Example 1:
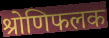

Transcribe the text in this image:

श्रोणिफलक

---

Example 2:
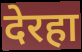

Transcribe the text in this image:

देरहा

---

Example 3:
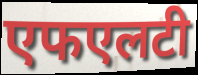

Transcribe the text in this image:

एफएलटी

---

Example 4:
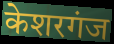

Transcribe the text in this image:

केशरगंज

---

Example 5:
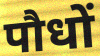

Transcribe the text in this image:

पौधों